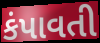
કંપાવતી